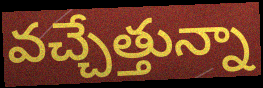
వచ్చేత్తున్నా